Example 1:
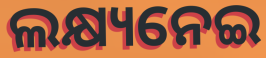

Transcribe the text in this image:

ଲକ୍ଷ୍ୟନେଇ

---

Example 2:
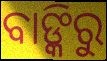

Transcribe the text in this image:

ବାଙ୍କିରୁ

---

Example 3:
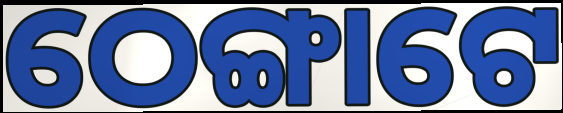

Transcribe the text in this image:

ଠେଙ୍ଗାଟେ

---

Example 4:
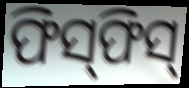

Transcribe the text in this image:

ଫିସ୍‍ଫିସ୍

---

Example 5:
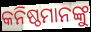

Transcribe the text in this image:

କନିଷ୍ଠମାନଙ୍କୁ